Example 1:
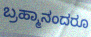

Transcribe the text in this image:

ಬ್ರಹ್ಮಾನಂದರೂ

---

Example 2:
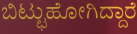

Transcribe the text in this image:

ಬಿಟ್ಟುಹೋಗಿದ್ದಾರೆ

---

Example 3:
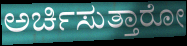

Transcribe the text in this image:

ಅರ್ಚಿಸುತ್ತಾರೋ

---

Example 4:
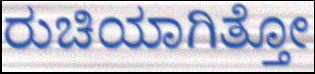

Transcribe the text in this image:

ರುಚಿಯಾಗಿತ್ತೋ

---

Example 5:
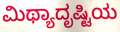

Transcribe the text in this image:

ಮಿಥ್ಯಾದೃಷ್ಟಿಯ